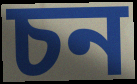
চন